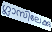
ഗ്ലാസിലേക്കു